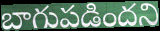
బాగుపడిందని